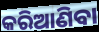
କରିଆଣିବା